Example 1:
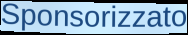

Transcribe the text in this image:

Sponsorizzato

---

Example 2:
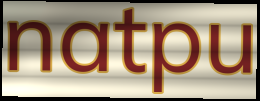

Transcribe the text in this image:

natpu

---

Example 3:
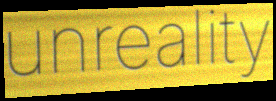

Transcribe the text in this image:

unreality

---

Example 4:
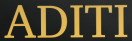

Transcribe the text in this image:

ADITI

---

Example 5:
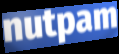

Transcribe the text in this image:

nutpam